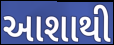
આશાથી